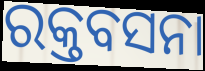
ରକ୍ତବସନା